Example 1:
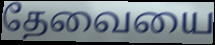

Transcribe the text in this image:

தேவையை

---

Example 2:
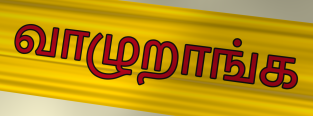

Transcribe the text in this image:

வாழுறாங்க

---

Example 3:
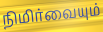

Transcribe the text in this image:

நிமிர்வையும்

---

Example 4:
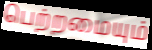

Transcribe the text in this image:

பெற்றமையும்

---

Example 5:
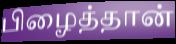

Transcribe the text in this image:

பிழைத்தான்